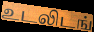
உடலிடங்